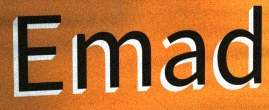
Emad